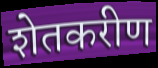
शेतकरीण